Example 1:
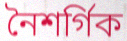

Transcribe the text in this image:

নৈশৰ্গিক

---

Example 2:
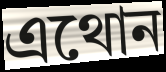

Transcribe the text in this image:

এথোন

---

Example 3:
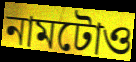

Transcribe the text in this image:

নামটোও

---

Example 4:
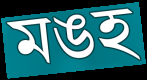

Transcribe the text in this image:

মঙহ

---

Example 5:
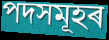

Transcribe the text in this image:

পদসমূহৰ